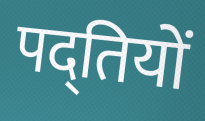
पद्तियों